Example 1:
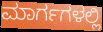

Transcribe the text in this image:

ಮಾರ್ಗಗಳಲ್ಲಿ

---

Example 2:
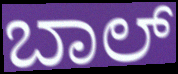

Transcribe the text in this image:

ಬಾಲ್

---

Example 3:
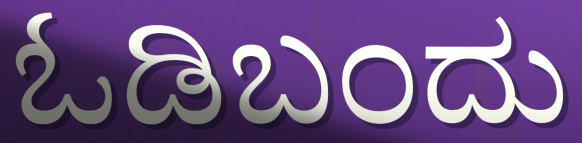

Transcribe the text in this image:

ಓಡಿಬಂದು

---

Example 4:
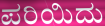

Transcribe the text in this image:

ಪರಿಯಿದು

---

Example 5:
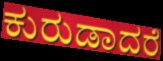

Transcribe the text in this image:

ಕುರುಡಾದರೆ